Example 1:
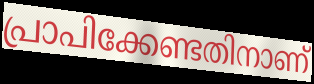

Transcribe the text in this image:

പ്രാപിക്കേണ്ടതിനാണ്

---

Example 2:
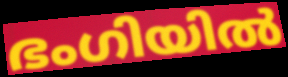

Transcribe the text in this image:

ഭംഗിയിൽ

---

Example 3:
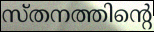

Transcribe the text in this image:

സ്തനത്തിന്റെ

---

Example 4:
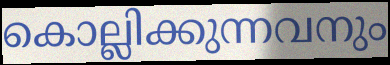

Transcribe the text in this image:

കൊല്ലിക്കുന്നവനും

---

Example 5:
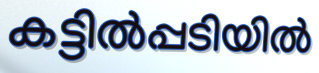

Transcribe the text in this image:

കട്ടിൽപ്പടിയിൽ